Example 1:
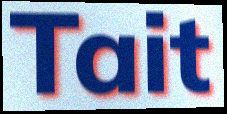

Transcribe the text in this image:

Tait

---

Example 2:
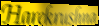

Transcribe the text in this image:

Harekrushna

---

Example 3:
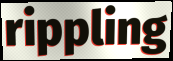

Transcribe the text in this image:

rippling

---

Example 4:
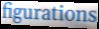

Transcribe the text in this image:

figurations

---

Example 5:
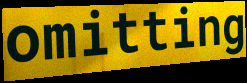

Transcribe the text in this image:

omitting